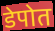
डेपोत